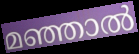
മഞ്ഞാൽ